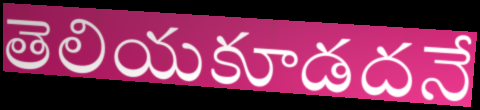
తెలియకూడదనే